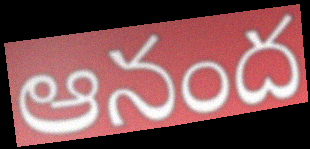
ఆనంద